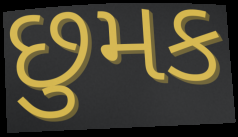
છુમક